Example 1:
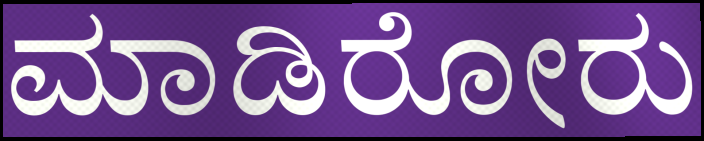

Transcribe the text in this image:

ಮಾಡಿರೋರು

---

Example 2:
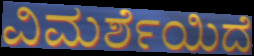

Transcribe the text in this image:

ವಿಮರ್ಶೆಯಿದೆ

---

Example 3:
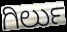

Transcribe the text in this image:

ಗಿರ್ಲು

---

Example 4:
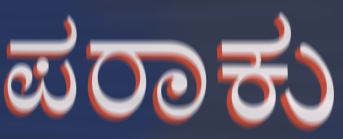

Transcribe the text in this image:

ಪರಾಕು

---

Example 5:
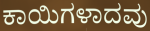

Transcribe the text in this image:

ಕಾಯಿಗಳಾದವು